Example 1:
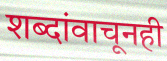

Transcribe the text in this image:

शब्दांवाचूनही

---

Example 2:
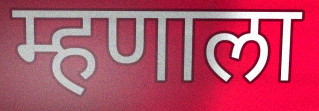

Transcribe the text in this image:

म्हणाला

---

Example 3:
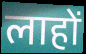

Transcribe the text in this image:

लाहों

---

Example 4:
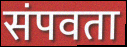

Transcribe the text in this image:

संपवता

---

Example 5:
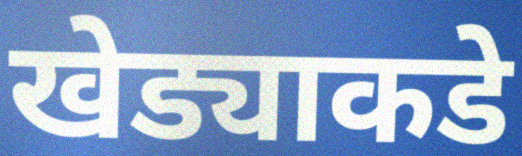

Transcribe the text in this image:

खेड्याकडे